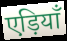
एड़ियाँ